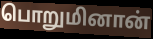
பொறுமினான்